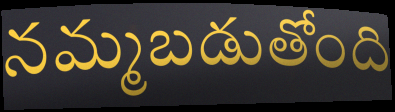
నమ్మబడుతోంది